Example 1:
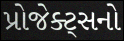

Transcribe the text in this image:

પ્રોજેક્ટ્સનો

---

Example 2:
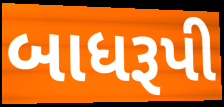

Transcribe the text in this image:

બાધરૂપી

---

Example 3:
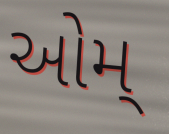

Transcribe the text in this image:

ઓમ્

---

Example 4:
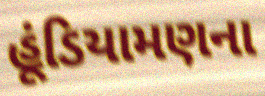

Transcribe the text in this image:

હૂંડિયામણના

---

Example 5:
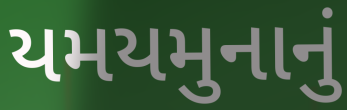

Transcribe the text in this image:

યમયમુનાનું